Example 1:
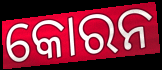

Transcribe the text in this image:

କୋରନ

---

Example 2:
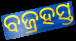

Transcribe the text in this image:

ବଜ୍ରହସ୍ତ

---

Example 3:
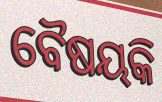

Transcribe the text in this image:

ବୈଷୟକି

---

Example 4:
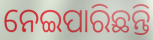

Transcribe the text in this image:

ନେଇପାରିଛନ୍ତି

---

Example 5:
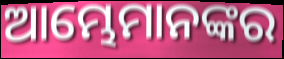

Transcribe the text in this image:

ଆମ୍ଭେମାନଙ୍କର